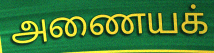
அணையக்